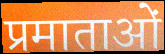
प्रमाताओं